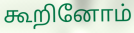
கூறினோம்